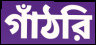
গাঁঠরি